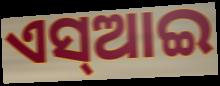
ଏସ୍ଆଇ